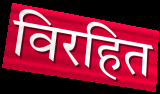
विरहित